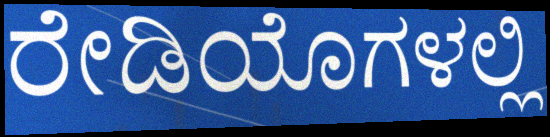
ರೇಡಿಯೊಗಳಲ್ಲಿ